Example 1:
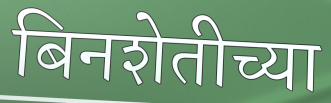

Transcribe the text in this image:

बिनशेतीच्या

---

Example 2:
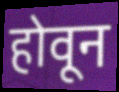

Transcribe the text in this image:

होवून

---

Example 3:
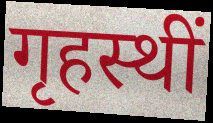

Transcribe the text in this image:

गृहस्थीं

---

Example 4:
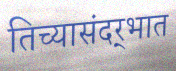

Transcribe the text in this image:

तिच्यासंदर्भात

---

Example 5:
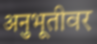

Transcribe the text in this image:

अनुभूतीवर